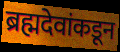
ब्रह्मदेवांकडून